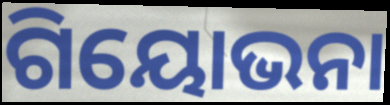
ଗିୟୋଭନା